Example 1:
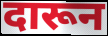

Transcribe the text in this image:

दारून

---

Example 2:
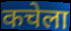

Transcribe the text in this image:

कचेला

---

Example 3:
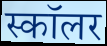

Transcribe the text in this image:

स्कॉलर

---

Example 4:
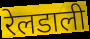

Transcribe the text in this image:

रेलडाली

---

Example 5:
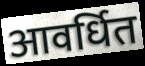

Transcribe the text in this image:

आवर्धित